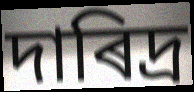
দাৰিদ্ৰ